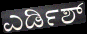
ಎರ್ಡಿಶ್